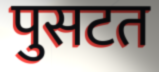
पुसटत